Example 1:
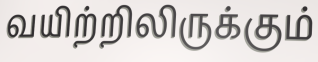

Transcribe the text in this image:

வயிற்றிலிருக்கும்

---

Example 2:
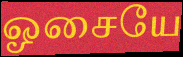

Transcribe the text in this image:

ஓசையே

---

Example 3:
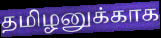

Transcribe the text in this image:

தமிழனுக்காக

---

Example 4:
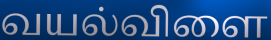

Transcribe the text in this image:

வயல்விளை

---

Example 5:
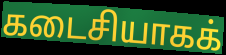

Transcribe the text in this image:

கடைசியாகக்